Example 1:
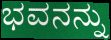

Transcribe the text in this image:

ಭವನನ್ನು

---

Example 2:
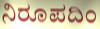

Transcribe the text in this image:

ನಿರೂಪದಿಂ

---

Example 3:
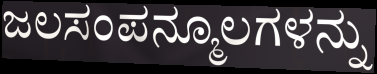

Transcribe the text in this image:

ಜಲಸಂಪನ್ಮೂಲಗಳನ್ನು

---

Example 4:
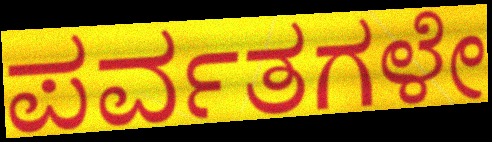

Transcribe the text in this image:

ಪರ್ವತಗಳೇ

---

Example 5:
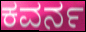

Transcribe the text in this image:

ಕವರ್ನ